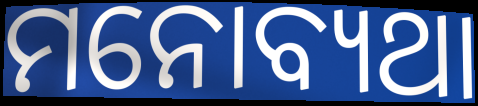
ମନୋବ୍ୟଥା